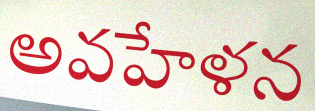
అవహేళన